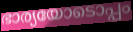
ഭാര്യയോടൊപ്പം